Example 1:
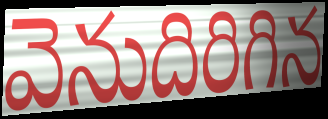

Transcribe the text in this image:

వెనుదిరిగిన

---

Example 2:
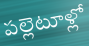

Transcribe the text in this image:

పల్లెటూళ్లో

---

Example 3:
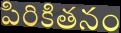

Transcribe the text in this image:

పిరికితనం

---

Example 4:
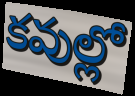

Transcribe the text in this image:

కవుల్లో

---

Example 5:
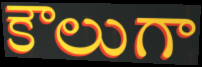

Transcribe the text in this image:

కౌలుగా